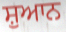
ਸ਼ੁਆਨ